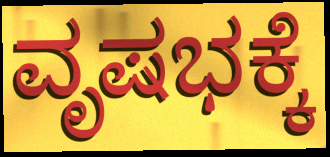
ವೃಷಭಕ್ಕೆ